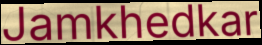
Jamkhedkar